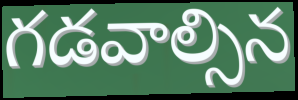
గడవాల్సిన